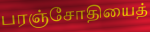
பரஞ்சோதியைத்